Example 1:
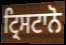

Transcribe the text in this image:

ਟ੍ਰਿਸਟਾਨੋ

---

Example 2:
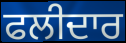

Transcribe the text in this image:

ਫਲੀਦਾਰ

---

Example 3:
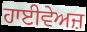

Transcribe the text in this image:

ਹਾਈਵੇਅਜ਼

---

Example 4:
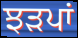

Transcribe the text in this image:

ਝੜਪਾਂ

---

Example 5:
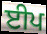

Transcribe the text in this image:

ਈਪ